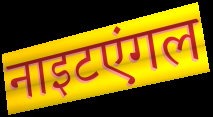
नाइटएंगल